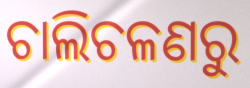
ଚାଲିଚଳଣରୁ